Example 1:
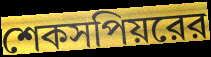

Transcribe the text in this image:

শেকসপিয়রের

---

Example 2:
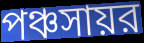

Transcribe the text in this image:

পঞ্চসায়র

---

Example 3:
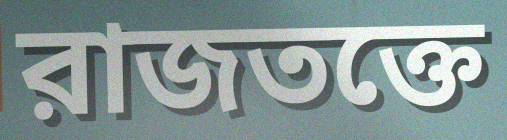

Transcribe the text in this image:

রাজতক্তে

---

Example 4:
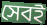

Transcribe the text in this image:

সেবই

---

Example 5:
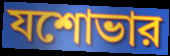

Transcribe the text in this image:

যশোভার